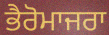
ਭੈਰੋਮਾਜਰਾ